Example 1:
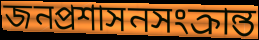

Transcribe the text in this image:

জনপ্রশাসনসংক্রান্ত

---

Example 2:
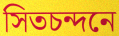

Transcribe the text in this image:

সিতচন্দনে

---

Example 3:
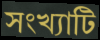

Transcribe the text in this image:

সংখ্যাটি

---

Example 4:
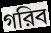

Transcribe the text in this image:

গরিব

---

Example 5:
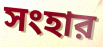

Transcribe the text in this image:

সংহার